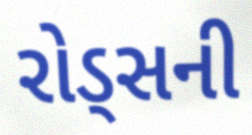
રોડ્સની